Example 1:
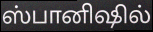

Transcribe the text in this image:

ஸ்பானிஷில்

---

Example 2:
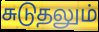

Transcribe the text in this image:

சுடுதலும்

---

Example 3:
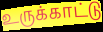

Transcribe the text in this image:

உருக்காட்டு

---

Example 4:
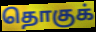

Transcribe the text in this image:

தொகுக்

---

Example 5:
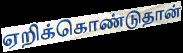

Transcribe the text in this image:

ஏறிக்கொண்டுதான்